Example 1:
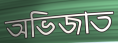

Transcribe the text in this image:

অভিজাত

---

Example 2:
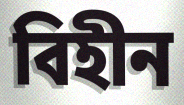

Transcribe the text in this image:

বিহীন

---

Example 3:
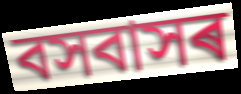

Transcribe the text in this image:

বসবাসৰ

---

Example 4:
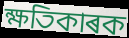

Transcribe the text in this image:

ক্ষতিকাৰক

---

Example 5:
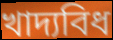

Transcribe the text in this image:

খাদ্যবিধ